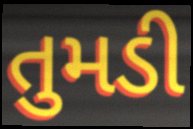
તુમડી